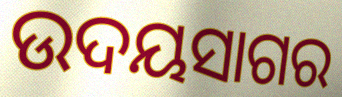
ଉଦୟସାଗର